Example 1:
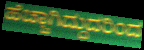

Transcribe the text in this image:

ಹೆಚ್ಚಾಗಿದ್ದುದರಿಂದ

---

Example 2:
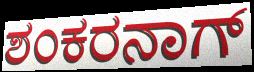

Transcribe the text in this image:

ಶಂಕರನಾಗ್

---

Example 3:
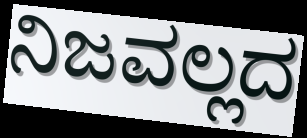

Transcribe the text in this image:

ನಿಜವಲ್ಲದ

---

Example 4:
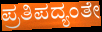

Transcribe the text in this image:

ಪ್ರತಿಪದ್ಯಂತೇ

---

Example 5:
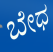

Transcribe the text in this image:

ಬೇಧ